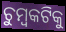
ଚୁମ୍ବକଟିକୁ